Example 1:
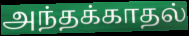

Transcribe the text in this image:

அந்தக்காதல்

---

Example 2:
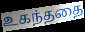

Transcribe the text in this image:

உகந்ததை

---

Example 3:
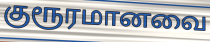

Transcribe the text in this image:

குரூரமானவை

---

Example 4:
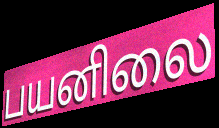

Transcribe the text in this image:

பயனிலை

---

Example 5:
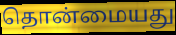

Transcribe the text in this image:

தொன்மையது